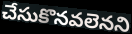
చేసుకొనవలెనని